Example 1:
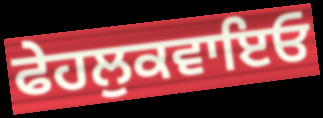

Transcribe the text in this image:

ਫੇਹਲੁਕਵਾਇਓ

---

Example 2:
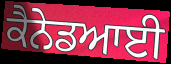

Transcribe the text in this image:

ਕੈਨੇਡਆਈ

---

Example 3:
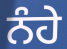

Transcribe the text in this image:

ਨੰਹੇ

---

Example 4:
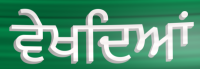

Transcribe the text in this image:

ਵੇਖਦਿਆਂ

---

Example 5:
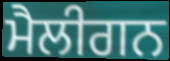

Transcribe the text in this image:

ਮੈਲੀਗਨ